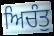
ਅਿਚੰਤੁ